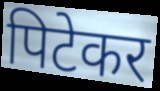
पिटेकर